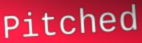
Pitched